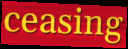
ceasing